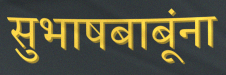
सुभाषबाबूंना